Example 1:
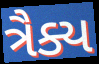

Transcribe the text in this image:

ત્રૈક્ય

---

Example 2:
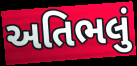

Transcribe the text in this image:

અતિભલું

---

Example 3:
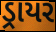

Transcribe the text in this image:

ડ્રાયર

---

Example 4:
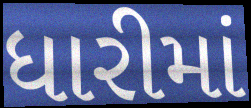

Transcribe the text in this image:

ધારીમાં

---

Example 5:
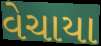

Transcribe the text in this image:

વેચાયા